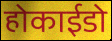
होकाईडो